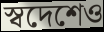
স্বদেশেও